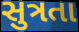
સુત્રતા